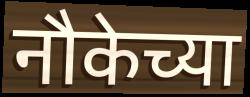
नौकेच्या